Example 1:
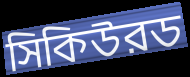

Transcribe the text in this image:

সিকিউরড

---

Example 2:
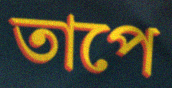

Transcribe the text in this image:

তাপে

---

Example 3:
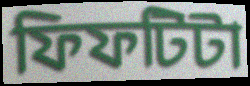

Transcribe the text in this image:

ফিফটিটা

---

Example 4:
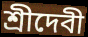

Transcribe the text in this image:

শ্রীদেবী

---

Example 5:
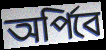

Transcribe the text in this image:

অর্পিবে